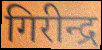
गिरीन्द्र